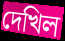
দেখিল